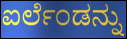
ಐರ್ಲೆಂಡನ್ನು